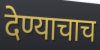
देण्याचाच